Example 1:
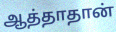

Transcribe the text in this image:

ஆத்தாதான்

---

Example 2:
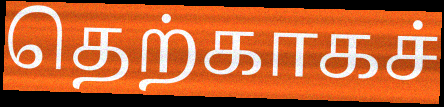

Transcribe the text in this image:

தெற்காகச்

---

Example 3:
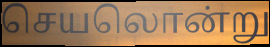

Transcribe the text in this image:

செயலொன்று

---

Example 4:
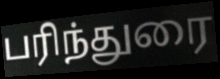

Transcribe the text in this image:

பரிந்துரை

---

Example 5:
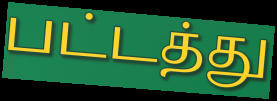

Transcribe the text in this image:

பட்டத்து